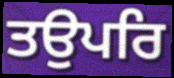
ਤਉਪਰਿ